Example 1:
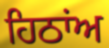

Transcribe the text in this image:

ਹਿਠਾਂਅ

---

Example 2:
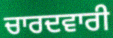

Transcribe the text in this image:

ਚਾਰਦਵਾਰੀ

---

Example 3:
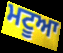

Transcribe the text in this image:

ਮਟੂਆ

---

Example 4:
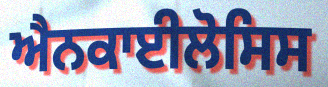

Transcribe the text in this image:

ਐਨਕਾਈਲੋਸਿਸ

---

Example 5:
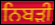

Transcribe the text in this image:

ਨਿਬੜੀ